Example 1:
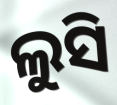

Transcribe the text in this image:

ଲୁସି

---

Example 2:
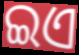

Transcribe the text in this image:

ଇଏ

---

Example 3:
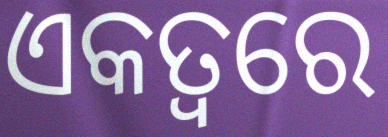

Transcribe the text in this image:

ଏକତ୍ୱରେ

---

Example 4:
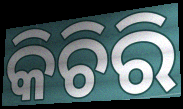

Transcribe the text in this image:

କିଚିରି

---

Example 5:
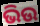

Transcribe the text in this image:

ଭିଉ